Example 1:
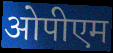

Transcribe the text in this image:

ओपीएम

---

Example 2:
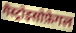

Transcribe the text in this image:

गैस्ट्रोइसोफ़ेगल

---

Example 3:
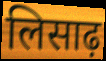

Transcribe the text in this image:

लिसाढ़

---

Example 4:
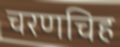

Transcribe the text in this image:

चरणचिह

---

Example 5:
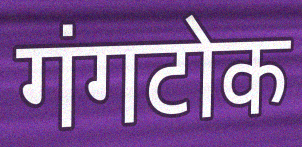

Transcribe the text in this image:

गंगटोक